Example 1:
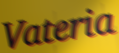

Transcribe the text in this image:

Vateria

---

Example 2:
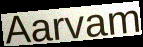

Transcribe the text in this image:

Aarvam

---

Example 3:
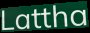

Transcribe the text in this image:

Lattha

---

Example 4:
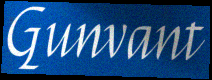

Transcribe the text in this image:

Gunvant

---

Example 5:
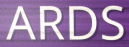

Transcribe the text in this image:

ARDS